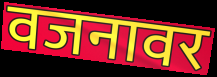
वजनावर